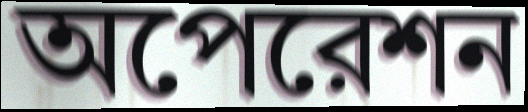
অপেরেশন